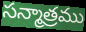
సన్మాత్రము